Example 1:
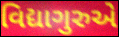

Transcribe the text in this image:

વિદ્યાગુરુએ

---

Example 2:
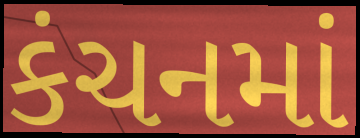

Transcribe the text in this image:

કંચનમાં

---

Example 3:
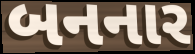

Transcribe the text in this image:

બનનાર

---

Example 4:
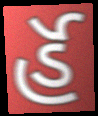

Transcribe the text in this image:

ર્હૅ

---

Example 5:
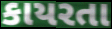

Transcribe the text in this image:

કાયરતા